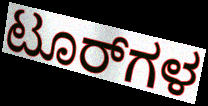
ಟೂರ್‌ಗಳ